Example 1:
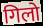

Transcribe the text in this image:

गिलो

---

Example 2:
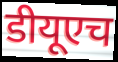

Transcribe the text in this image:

डीयूएच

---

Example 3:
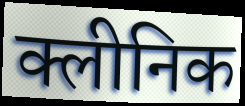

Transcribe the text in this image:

क्‍लीनिक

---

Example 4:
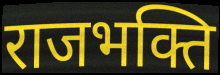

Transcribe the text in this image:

राजभक्ति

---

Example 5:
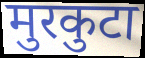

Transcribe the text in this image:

मुरकुटा